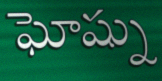
ఘోష్ను